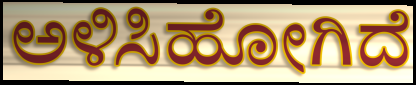
ಅಳಿಸಿಹೋಗಿದೆ